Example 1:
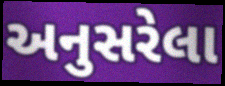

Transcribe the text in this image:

અનુસરેલા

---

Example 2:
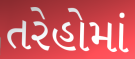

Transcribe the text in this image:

તરેહોમાં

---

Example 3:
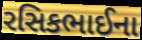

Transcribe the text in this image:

રસિકભાઈના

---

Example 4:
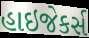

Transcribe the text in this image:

હાઇજેકર્સ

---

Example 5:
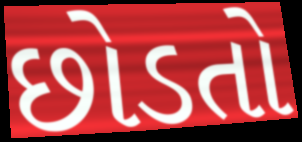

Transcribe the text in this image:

છોડતો